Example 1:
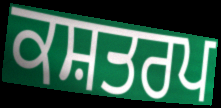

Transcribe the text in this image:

ਕਸ਼ਤਰਪ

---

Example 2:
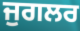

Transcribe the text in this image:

ਜੁਗਲਰ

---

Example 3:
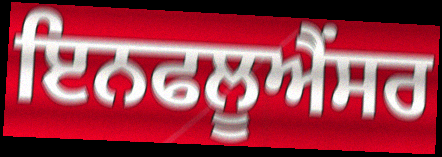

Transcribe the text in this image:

ਇਨਫਲੂਐਂਸਰ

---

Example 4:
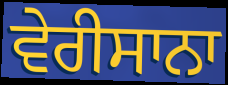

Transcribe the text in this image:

ਵੇਰੀਸਾਨਾ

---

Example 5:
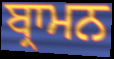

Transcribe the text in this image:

ਬ੍ਰਾਮਨ